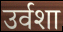
उर्वशा